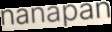
nanapan